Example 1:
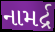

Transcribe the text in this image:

નામર્દ્ર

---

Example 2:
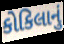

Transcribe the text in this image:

કોકિલાનું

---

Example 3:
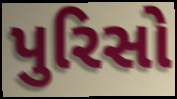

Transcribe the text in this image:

પુરિસો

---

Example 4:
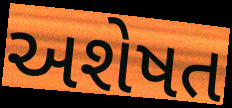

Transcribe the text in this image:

અશેષત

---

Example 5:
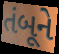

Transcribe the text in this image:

તંબૂને